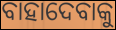
ବାହାଦେବାକୁ